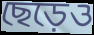
ছেড়েও